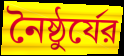
নৈষ্ঠুর্যের